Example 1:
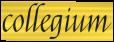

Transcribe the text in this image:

collegium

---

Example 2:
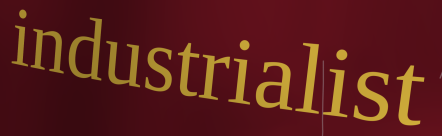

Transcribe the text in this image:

industrialist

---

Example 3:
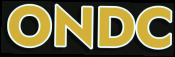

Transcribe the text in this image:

ONDC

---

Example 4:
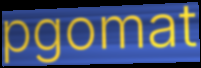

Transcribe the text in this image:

pgomat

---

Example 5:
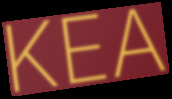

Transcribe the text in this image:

KEA